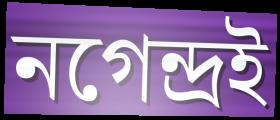
নগেন্দ্রই